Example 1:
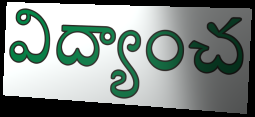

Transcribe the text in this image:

విద్యాంచ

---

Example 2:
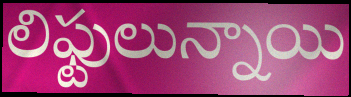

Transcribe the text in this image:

లిఫ్టులున్నాయి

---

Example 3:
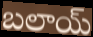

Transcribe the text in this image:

బలాయ్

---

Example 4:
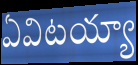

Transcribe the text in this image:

ఏవిటయ్యా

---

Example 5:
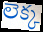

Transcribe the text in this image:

లెక్క